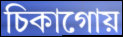
চিকাগোয়